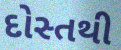
દોસ્તથી